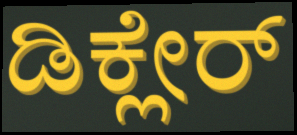
ಡಿಕ್ಲೇರ್